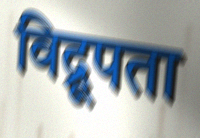
विद्रूपता